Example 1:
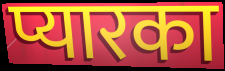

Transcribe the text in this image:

प्यारका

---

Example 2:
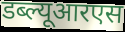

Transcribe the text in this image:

डब्ल्यूआरएस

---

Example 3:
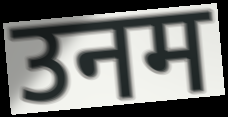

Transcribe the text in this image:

उनम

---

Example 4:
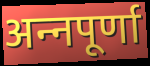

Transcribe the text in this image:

अन्नपूर्णा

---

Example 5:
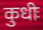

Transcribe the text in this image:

कुधीः